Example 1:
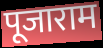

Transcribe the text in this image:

पूजाराम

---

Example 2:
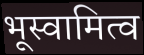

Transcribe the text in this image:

भूस्वामित्व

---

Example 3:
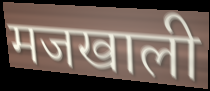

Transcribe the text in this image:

मजखाली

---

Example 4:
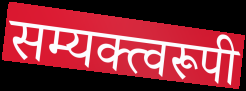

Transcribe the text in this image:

सम्यक्त्वरूपी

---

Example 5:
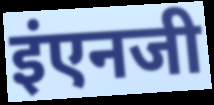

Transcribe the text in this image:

इंएनजी